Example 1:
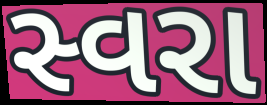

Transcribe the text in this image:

સ્વરા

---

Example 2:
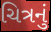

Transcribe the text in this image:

ચિત્રનું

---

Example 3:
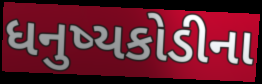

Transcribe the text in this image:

ધનુષ્યકોડીના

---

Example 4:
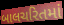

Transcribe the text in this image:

બાલચરિતમાં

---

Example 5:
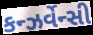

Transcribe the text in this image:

કન્ઝર્વેન્સી